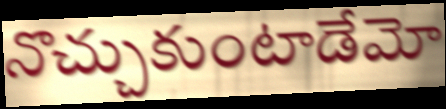
నొచ్చుకుంటాడేమో